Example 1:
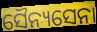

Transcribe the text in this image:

ସୈନ୍ୟସେନା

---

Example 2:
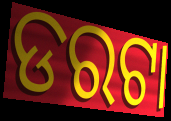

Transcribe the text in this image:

ଡରଟା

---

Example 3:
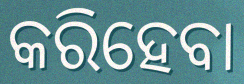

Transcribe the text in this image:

କରିହେବା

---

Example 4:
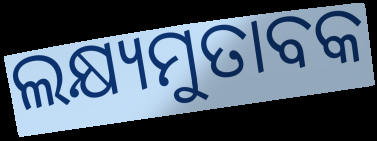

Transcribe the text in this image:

ଲକ୍ଷ୍ୟମୁତାବକ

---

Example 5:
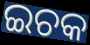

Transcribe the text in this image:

ଇଚକ